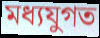
মধ্যযুগত